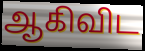
ஆகிவிட